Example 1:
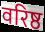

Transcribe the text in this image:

वरिष्ठ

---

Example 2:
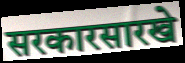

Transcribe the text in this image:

सरकारसारखे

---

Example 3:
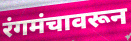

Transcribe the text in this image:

रंगमंचावरून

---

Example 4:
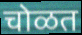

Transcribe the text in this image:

चोळत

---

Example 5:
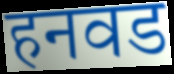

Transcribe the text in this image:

हनवड